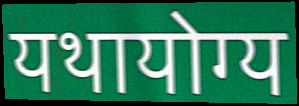
यथायोग्य